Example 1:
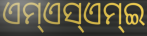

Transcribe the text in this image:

ଏମ୍ଏସ୍ଏମ୍ଇ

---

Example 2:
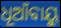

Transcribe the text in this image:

ଧୂଆଁବାୟୁ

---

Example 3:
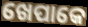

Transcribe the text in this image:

ଖେପାକେ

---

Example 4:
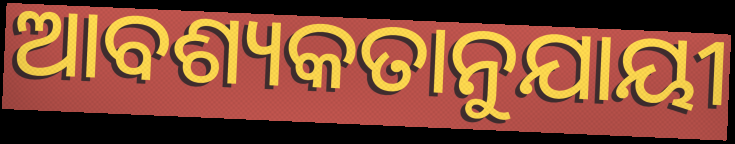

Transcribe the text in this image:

ଆବଶ୍ୟକତାନୁଯାୟୀ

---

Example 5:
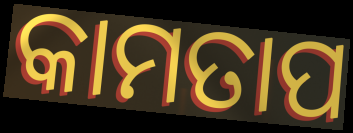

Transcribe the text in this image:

କାମତାପ